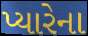
પ્યારેના